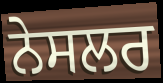
ਨੇਸਲਰ